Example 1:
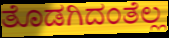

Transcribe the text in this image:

ತೊಡಗಿದಂತೆಲ್ಲ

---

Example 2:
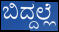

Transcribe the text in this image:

ಬಿದ್ದಲ್ಲೆ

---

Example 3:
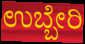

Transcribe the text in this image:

ಉಬ್ಬೇರಿ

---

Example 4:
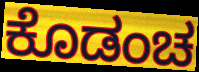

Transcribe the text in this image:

ಕೊಡಂಚ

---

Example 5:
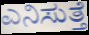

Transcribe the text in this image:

ಎನಿಸುತ್ತೆ